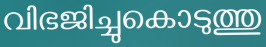
വിഭജിച്ചുകൊടുത്തു